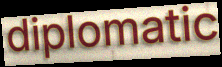
diplomatic